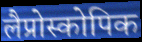
लैप्रोस्कोपिक